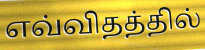
எவ்விதத்தில்